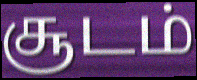
சூடம்